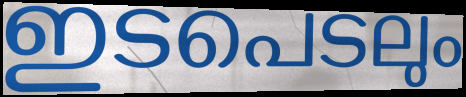
ഇടപെടലും